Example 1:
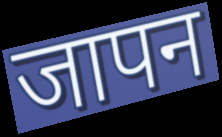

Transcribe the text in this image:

जापन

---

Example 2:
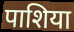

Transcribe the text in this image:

पाशिया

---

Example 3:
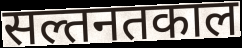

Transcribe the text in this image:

सल्तनतकाल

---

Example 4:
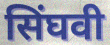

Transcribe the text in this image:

सिंघवी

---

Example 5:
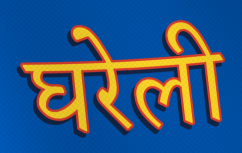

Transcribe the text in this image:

घरेली